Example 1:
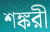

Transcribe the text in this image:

শঙ্করী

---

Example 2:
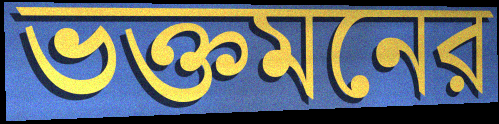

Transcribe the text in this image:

ভক্তমনের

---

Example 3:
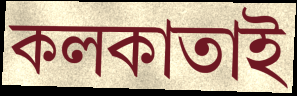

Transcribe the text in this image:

কলকাতাই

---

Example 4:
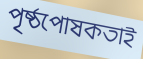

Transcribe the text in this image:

পৃষ্ঠপোষকতাই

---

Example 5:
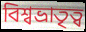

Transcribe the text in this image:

বিশ্বভ্রাতৃত্ব